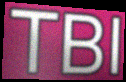
TBI